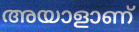
അയാളാണ്